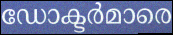
ഡോക്ടർമാരെ